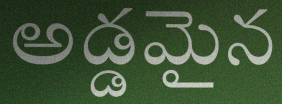
అడ్డమైన